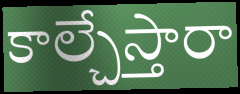
కాల్చేస్తారా